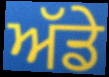
ਅੱਡੇ